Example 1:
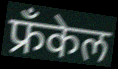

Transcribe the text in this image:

फ्रँकेल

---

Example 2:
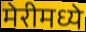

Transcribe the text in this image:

मेरीमध्ये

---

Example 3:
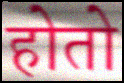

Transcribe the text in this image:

होतो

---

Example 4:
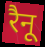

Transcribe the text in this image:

रैनू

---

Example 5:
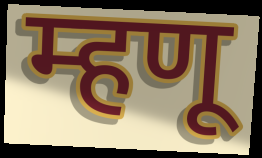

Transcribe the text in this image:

म्हणू